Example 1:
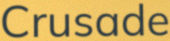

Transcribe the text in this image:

Crusade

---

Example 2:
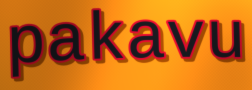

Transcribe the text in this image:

pakavu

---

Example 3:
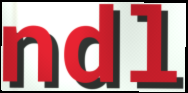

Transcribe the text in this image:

ndl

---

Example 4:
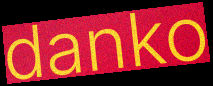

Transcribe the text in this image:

danko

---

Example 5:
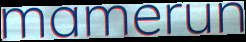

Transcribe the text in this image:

mamerun